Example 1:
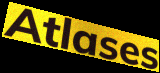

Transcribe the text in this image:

Atlases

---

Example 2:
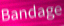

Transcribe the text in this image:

Bandage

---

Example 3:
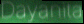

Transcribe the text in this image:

Dayanita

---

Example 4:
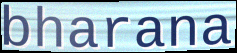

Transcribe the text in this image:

bharana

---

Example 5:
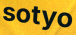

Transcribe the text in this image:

sotyo